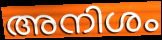
അനിശം